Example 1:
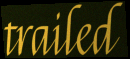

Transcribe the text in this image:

trailed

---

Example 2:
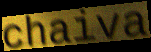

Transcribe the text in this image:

chaiva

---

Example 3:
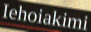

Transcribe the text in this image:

Iehoiakimi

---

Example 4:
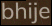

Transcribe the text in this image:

bhije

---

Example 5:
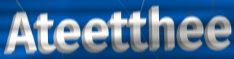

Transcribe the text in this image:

Ateetthee